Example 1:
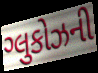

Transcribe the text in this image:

ગ્લુકોઝની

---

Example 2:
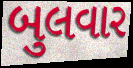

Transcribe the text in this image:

બુલવાર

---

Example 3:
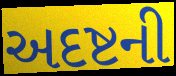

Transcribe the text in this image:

અદષ્ટની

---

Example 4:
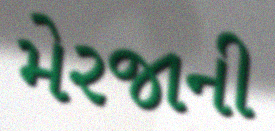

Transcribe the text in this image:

મેરજાની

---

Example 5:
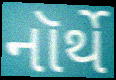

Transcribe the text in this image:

નૉર્થે